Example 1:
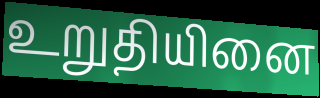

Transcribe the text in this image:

உறுதியினை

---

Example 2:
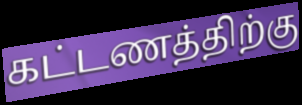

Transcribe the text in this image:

கட்டணத்திற்கு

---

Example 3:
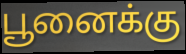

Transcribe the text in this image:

பூனைக்கு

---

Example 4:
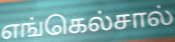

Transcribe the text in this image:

எங்கெல்சால்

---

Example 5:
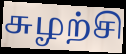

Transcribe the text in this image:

சுழற்சி